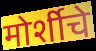
मोर्शीचे